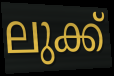
ലുക്ക്